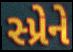
સ્પ્રેને